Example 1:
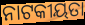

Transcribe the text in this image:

ନାଟକୀୟତା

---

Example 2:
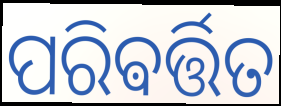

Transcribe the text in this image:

ପରିଵର୍ତ୍ତିତ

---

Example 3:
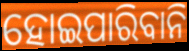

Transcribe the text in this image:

ହୋଇପାରିବାନି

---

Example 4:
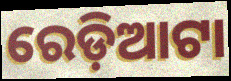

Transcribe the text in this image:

ରେଡ଼ିଆଟା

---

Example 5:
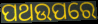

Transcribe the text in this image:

ପଥଉପରେ